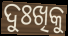
ଦୁଃଖିକୁ